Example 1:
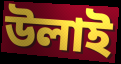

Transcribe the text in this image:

উলাই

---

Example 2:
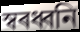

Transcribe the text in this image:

স্বৰধ্বনি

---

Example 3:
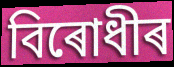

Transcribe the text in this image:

বিৰোধীৰ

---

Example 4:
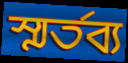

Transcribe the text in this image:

স্মৰ্তব্য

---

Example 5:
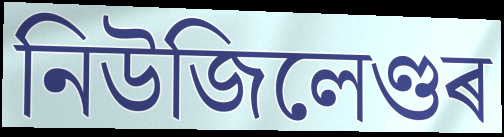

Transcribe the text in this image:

নিউজিলেণ্ডৰ